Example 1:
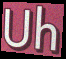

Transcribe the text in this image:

Uh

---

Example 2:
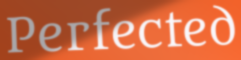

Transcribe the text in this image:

Perfected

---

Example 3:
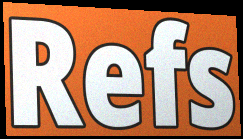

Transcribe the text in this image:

Refs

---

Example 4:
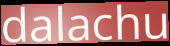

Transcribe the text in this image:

dalachu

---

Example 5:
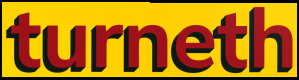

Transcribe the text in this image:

turneth